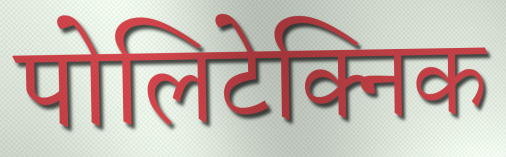
पोलिटेक्निक